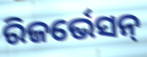
ରିଜର୍ଭେସନ୍